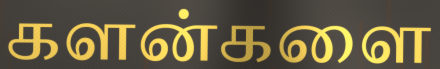
களன்களை